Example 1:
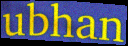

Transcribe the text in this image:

ubhan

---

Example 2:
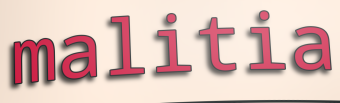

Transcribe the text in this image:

malitia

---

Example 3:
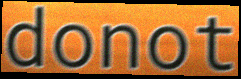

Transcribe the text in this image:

donot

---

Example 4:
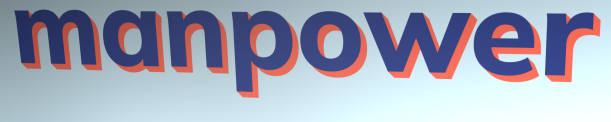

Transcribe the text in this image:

manpower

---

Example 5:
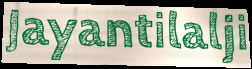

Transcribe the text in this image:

Jayantilalji